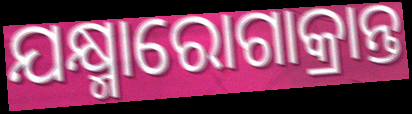
ଯକ୍ଷ୍ମାରୋଗାକ୍ରାନ୍ତ